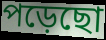
পড়েছো